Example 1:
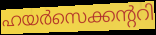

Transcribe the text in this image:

ഹയർസെക്കന്ററി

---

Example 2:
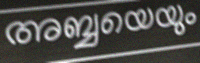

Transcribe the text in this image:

അബ്ബയെയും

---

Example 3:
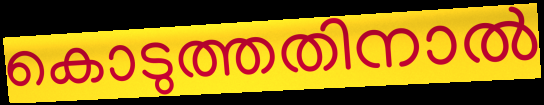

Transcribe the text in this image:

കൊടുത്തതിനാൽ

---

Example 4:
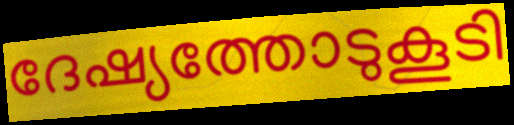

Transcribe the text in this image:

ദേഷ്യത്തോടുകൂടി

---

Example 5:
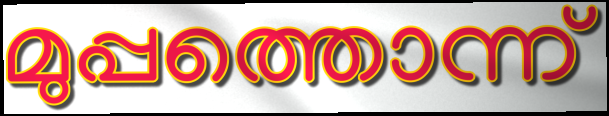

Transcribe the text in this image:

മുപ്പത്തൊന്ന്